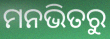
ମନଭିତରୁ